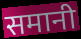
समानी